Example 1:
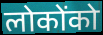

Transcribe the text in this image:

लोकोंको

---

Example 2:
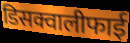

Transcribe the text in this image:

डिसक्वालीफाई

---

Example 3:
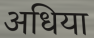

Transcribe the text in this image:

अधिया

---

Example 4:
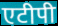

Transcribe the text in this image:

एटीपी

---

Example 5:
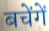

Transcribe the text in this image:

बचेंगें